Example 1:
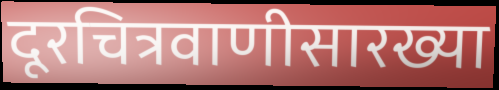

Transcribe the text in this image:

दूरचित्रवाणीसारख्या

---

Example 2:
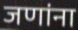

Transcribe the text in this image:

जणांना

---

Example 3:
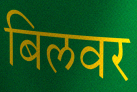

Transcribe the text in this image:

बिलवर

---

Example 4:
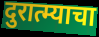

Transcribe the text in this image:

दुरात्म्याचा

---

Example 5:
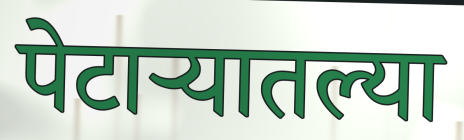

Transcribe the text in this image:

पेटाऱ्यातल्या